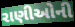
રાણીઓની